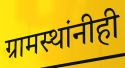
ग्रामस्थांनीही